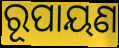
ରୂପାୟଣ